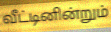
வீட்டினின்றும்